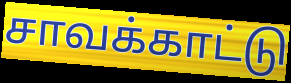
சாவக்காட்டு